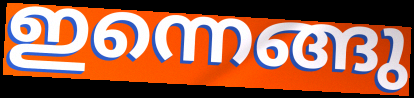
ഇന്നെങ്ങു